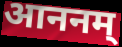
आननम्